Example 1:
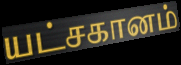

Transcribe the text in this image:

யட்சகானம்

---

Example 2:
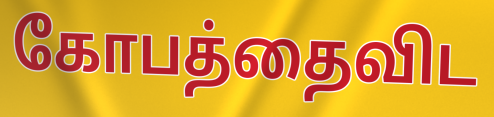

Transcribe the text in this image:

கோபத்தைவிட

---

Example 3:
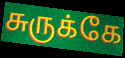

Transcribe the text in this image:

சுருக்கே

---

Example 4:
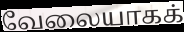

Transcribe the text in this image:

வேலையாகக்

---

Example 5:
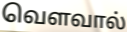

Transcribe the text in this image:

வெளவால்